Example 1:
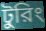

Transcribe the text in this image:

টুরিং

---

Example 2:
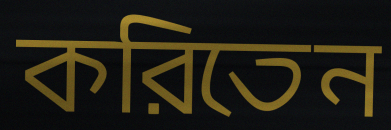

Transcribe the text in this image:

করিতেন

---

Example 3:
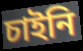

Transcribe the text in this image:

চাইনি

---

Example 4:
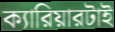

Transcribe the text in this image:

ক্যারিয়ারটাই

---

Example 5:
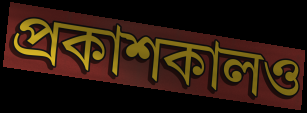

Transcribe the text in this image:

প্রকাশকালও